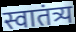
स्‍वातंत्र्य